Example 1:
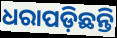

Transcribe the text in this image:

ଧରାପଡ଼ିଛନ୍ତି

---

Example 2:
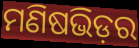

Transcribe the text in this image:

ମଣିଷଭିଡ଼ର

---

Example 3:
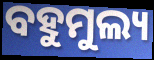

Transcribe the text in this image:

ବହୁମୁଲ୍ୟ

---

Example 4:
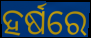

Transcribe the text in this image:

ହର୍ଷରେ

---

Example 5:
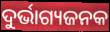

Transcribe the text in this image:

ଦୁର୍ଭାଗ୍ୟଜନକ